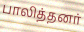
பாலித்தனர்